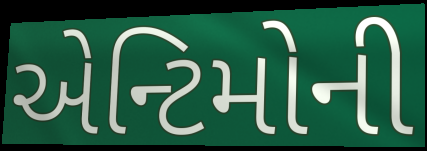
એન્ટિમોની